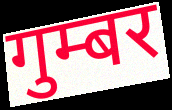
गुम्बर